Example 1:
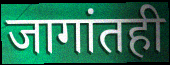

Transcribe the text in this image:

जागांतही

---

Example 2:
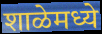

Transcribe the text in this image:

शाळेमध्ये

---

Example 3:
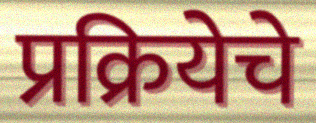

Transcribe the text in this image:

प्रक्रियेचे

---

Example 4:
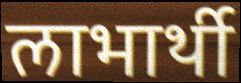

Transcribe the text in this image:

लाभार्थी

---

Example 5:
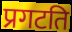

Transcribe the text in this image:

प्रगटति